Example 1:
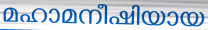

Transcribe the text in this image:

മഹാമനീഷിയായ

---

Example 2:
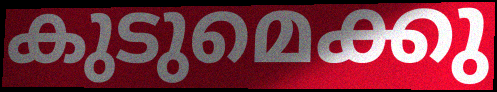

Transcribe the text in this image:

കുടുമെക്കു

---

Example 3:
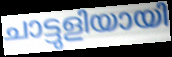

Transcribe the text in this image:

ചാട്ടുളിയായി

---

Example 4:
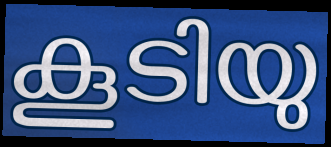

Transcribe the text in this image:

കൂടിയു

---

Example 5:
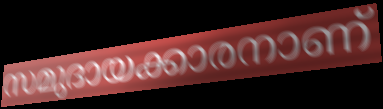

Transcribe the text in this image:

സമുദായക്കാരനാണ്